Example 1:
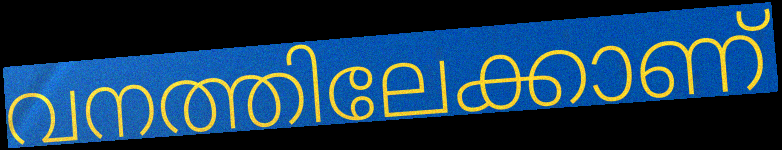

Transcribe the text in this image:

വനത്തിലേക്കാണ്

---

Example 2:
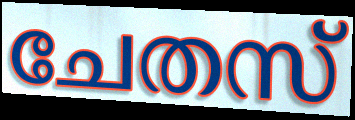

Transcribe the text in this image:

ചേതസ്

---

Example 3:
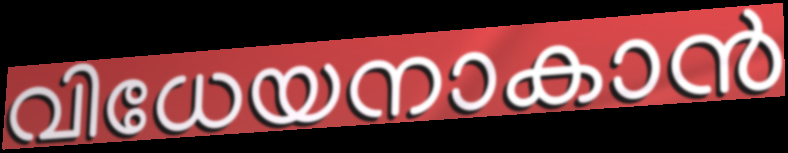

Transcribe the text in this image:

വിധേയനാകാൻ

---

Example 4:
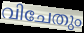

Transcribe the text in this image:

വിചേതും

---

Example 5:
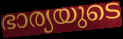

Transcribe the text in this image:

ഭാര്യയുടെ